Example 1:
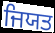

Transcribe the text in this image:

ਜਿਯਤ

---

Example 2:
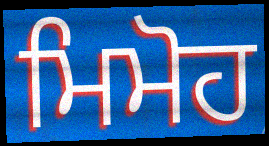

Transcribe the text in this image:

ਮਿਮੋਹ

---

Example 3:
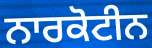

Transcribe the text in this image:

ਨਾਰਕੋਟੀਨ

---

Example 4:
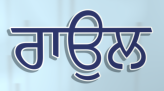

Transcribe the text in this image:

ਰਾਉਲ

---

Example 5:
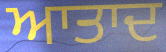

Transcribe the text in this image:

ਆਤਾਦ